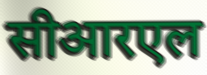
सीआरएल